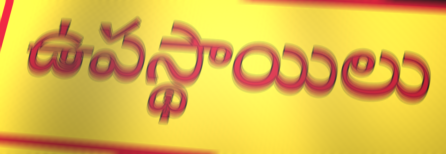
ఉపస్థాయిలు